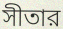
সীতার